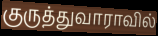
குருத்துவாராவில்